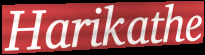
Harikathe